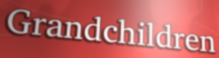
Grandchildren